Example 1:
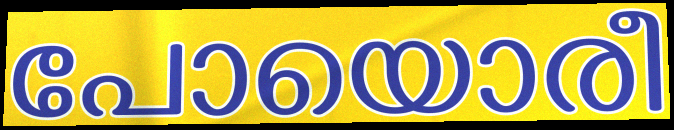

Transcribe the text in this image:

പോയൊരീ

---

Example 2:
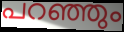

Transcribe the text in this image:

പറഞ്ഞും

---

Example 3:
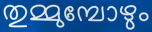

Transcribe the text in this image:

തുമ്മുമ്പോഴും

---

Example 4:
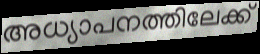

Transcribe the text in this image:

അധ്യാപനത്തിലേക്ക്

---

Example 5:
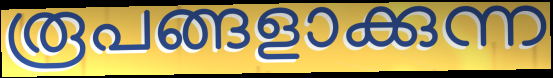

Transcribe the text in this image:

രൂപങ്ങളാക്കുന്ന